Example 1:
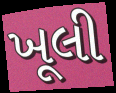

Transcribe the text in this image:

ખૂલી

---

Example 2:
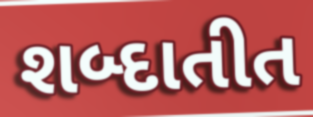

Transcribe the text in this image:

શબ્દાતીત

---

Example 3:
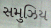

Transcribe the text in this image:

સમુઝિય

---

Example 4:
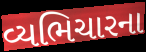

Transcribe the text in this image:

વ્યભિચારના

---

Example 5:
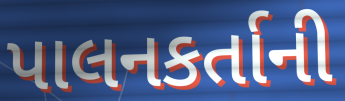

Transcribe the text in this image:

પાલનકર્તાની